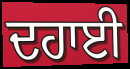
ਦਹਾਈ